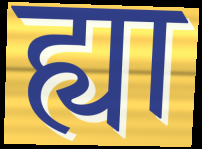
ह्या